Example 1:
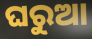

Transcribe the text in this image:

ଘରୁଆ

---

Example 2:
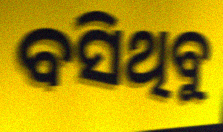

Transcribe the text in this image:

ବସିଥିବୁ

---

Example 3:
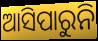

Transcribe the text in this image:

ଆସିପାରୁନି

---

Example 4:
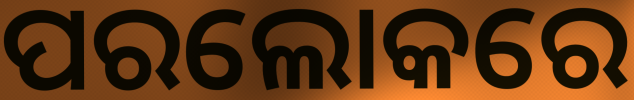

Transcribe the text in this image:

ପରଲୋକରେ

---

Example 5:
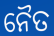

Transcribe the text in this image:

ନୈତ